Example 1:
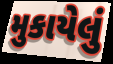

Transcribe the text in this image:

મુકાયેલું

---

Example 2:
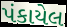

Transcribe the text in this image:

પંકાયેલ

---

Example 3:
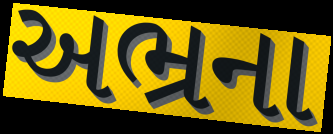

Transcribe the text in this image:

અભ્રના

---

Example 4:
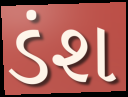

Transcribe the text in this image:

ડંશ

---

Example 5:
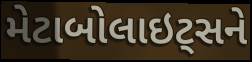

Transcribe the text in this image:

મેટાબોલાઇટ્સને